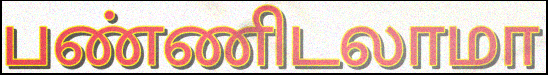
பண்ணிடலாமா